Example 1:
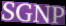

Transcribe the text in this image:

SGNP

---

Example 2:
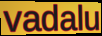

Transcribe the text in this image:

vadalu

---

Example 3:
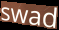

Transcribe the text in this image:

swad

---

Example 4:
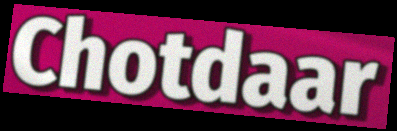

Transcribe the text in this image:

Chotdaar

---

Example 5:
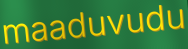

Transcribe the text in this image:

maaduvudu